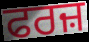
ਫਰਜ਼